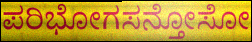
ಪರಿಭೋಗಸನ್ತೋಸೋ